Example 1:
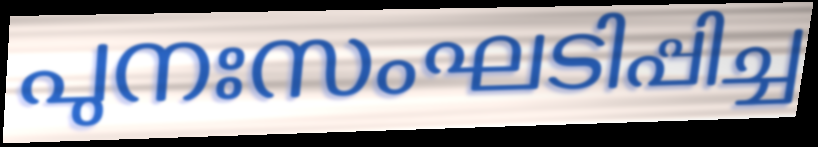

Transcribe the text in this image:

പുനഃസംഘടിപ്പിച്ച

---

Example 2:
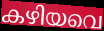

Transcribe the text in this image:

കഴിയവെ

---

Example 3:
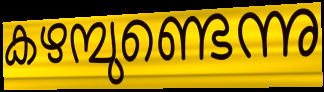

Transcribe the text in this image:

കഴമ്പുണ്ടെന്നു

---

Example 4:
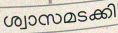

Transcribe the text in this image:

ശ്വാസമടക്കി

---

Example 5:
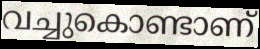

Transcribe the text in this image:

വച്ചുകൊണ്ടാണ്